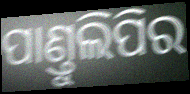
ପାଣ୍ତୁଲିପିର